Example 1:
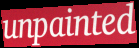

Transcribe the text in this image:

unpainted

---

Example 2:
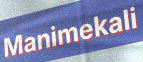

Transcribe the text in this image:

Manimekali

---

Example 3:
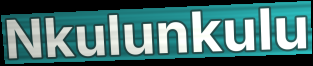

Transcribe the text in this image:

Nkulunkulu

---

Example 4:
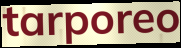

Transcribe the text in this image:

tarporeo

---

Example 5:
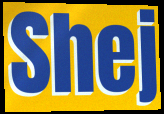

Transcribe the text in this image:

Shej